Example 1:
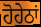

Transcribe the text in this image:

ਹੋਹੇਠਾਂ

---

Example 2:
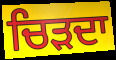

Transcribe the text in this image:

ਚਿੜਦਾ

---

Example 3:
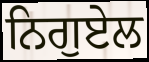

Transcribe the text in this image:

ਨਿਗੁਏਲ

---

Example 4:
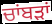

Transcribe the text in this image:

ਚਾਂਬੜਾਂ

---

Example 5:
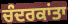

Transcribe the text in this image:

ਚੰਦਰਕਾਂਤਾ